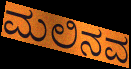
ಮಲಿನವ